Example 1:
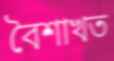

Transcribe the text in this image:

বৈশাখত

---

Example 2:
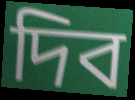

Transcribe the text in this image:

দিব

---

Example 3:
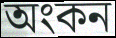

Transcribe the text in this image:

অংকন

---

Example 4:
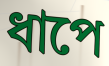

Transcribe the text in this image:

ধাপে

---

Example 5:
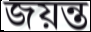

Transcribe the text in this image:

জয়ন্ত